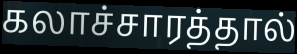
கலாச்சாரத்தால்